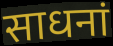
साधनां